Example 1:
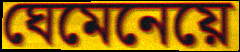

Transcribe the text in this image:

ঘেমেনেয়ে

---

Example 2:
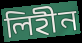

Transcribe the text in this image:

লিহীন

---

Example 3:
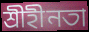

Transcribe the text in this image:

শ্রীহীনতা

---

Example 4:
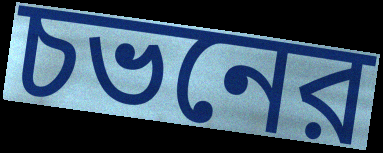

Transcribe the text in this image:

চভনের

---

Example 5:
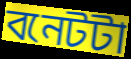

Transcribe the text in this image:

বনেটটা